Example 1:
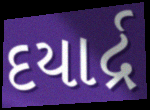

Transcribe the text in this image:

દયાર્દ્ર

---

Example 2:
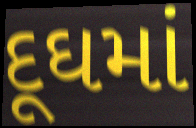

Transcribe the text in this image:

દૂઘમાં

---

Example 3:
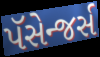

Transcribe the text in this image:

પૅસેન્જર્સ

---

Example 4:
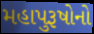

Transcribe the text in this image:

મહાપુરૂષોનો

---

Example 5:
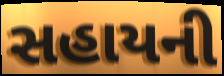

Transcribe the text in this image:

સહાયની